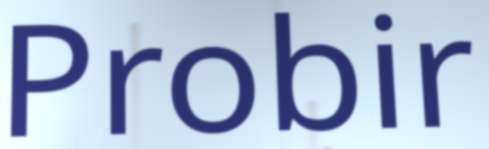
Probir